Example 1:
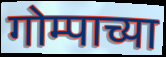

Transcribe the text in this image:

गोम्पाच्या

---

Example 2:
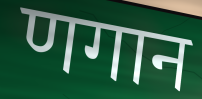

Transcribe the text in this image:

णगान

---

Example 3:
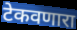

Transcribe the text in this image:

टेकवणारा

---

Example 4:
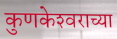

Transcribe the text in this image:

कुणकेश्वराच्या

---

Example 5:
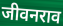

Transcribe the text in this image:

जीवनराव